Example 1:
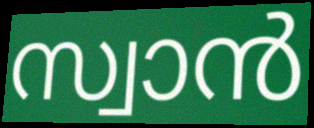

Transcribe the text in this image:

സ്വാൻ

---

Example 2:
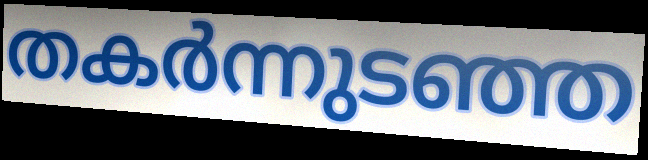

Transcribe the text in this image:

തകർന്നുടഞ്ഞ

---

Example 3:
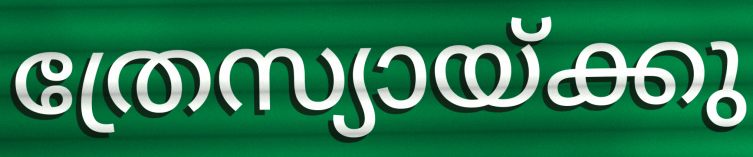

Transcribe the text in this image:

ത്രേസ്യായ്ക്കു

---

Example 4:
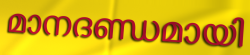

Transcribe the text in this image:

മാനദണ്ഡമായി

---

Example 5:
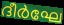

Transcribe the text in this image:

ദീർഘേ